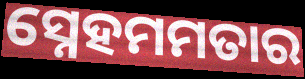
ସ୍ନେହମମତାର